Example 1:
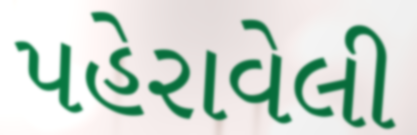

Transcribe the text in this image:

પહેરાવેલી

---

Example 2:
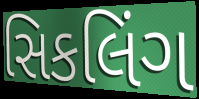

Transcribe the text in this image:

સિકલિંગ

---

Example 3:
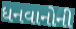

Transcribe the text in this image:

ધનવાનોની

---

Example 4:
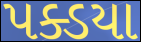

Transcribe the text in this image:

પક્ડયા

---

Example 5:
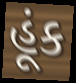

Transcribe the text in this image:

હૂંક